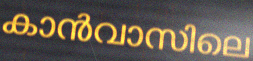
കാൻവാസിലെ